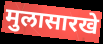
मुलासारखे